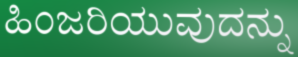
ಹಿಂಜರಿಯುವುದನ್ನು